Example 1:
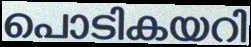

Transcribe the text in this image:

പൊടികയറി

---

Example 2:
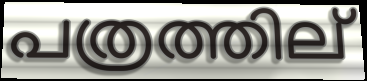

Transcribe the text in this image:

പത്രത്തില്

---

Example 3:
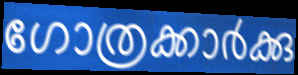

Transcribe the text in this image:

ഗോത്രക്കാർക്കു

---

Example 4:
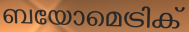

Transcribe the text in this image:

ബയോമെട്രിക്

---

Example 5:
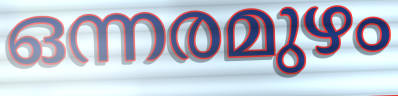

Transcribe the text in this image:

ഒന്നരമുഴം